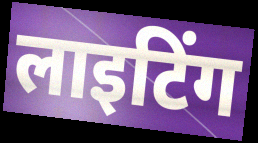
लाइटिंग